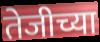
तेजीच्या